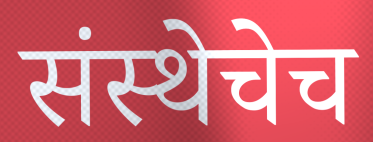
संस्थेचेच